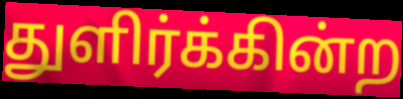
துளிர்க்கின்ற